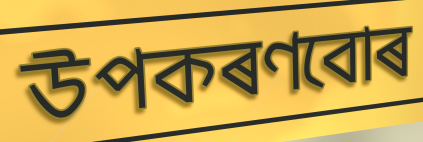
উপকৰণবোৰ